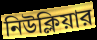
নিউক্লিয়ার